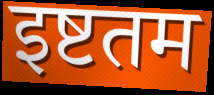
इष्टतम